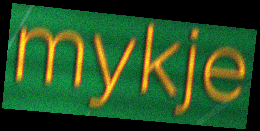
mykje